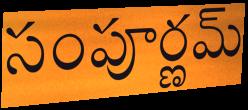
సంపూర్ణమ్